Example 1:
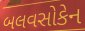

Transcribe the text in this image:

બલવસોકેન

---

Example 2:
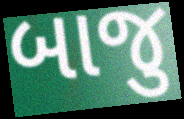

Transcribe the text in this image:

બાજુ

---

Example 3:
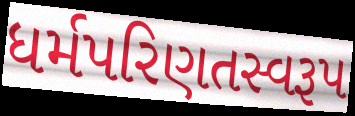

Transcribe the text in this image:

ધર્મપરિણતસ્વરૂપ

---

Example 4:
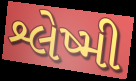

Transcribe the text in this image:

શ્લેષ્મી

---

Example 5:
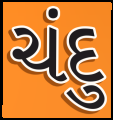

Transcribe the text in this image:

ચંદુ